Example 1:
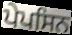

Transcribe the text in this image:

ਪੇਪਸਿਨ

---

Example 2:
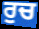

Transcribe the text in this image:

ਰੁਚ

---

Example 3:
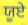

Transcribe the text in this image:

ਯੂਏ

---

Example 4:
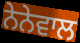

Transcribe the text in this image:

ਨੇਨੇਵਾਲ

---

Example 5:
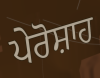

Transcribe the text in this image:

ਪੇਰੋਸ਼ਾਹ